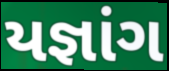
યજ્ઞાંગ